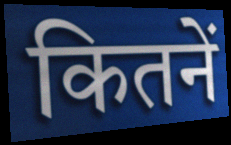
कितनें